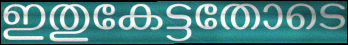
ഇതുകേട്ടതോടെ